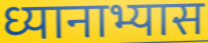
ध्यानाभ्यास